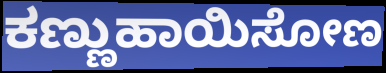
ಕಣ್ಣುಹಾಯಿಸೋಣ